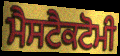
ਮੈਸਟੈਕਟੋਮੀ